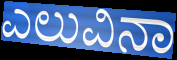
ಎಲುವಿನಾ